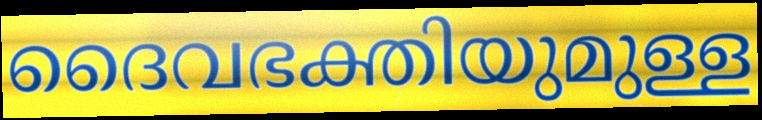
ദൈവഭക്തിയുമുള്ള